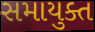
સમાયુક્ત